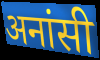
अनांसी